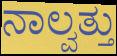
ನಾಲ್ವತ್ತು